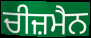
ਚੀਜ਼ਮੈਨ